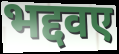
भद्दवए